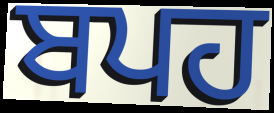
ਬਪਹ